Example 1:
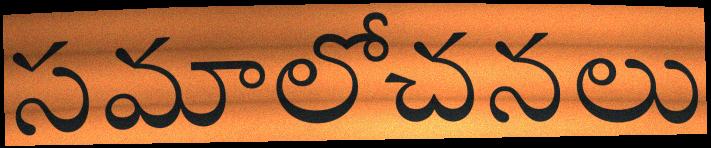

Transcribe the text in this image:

సమాలోచనలు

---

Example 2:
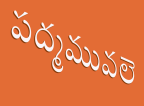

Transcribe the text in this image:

పద్మమువలె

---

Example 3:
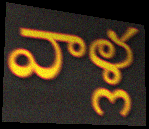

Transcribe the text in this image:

వాళ్ల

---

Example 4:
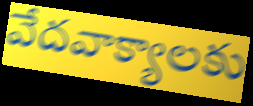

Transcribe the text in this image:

వేదవాక్యాలకు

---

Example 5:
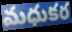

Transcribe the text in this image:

మధుకర